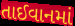
તાઈવાનમાં